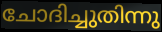
ചോദിച്ചുതിന്നു